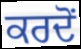
ਕਰਦੋਂ